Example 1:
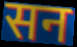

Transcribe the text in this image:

सन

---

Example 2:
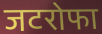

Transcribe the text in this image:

जटरोफा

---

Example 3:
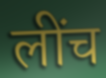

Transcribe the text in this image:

लींच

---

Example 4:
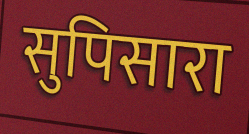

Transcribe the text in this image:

सुपिसारा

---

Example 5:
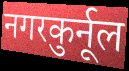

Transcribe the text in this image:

नगरकुर्नूल